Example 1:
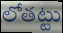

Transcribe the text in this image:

లోతట్టు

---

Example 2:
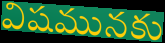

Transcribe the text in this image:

విషమునకు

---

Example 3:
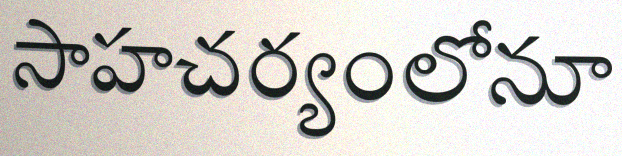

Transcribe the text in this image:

సాహచర్యంలోనూ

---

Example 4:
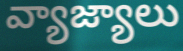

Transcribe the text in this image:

వ్యాజ్యాలు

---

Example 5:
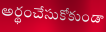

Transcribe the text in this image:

అర్థంచేసుకోకుండా